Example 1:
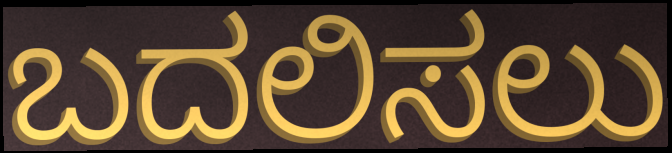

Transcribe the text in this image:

ಬದಲಿಸಲು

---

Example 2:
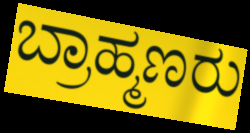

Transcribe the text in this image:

ಬ್ರಾಹ್ಮಣರು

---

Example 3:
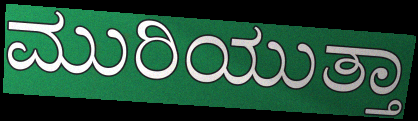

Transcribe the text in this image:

ಮುರಿಯುತ್ತಾ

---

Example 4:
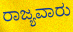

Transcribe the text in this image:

ರಾಜ್ಯವಾರು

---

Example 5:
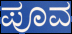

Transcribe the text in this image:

ಪೂವ